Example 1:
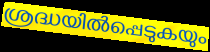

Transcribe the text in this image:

ശ്രദ്ധയിൽപ്പെടുകയും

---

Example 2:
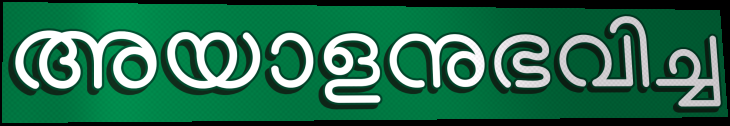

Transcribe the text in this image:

അയാളനുഭവിച്ച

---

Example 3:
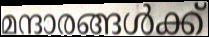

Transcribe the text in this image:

മന്ദാരങ്ങൾക്ക്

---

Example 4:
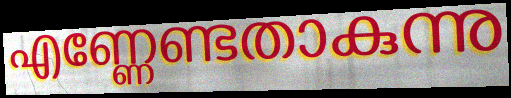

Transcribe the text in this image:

എണ്ണേണ്ടതാകുന്നു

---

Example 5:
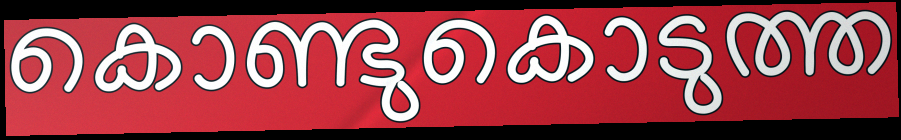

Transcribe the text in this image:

കൊണ്ടുകൊടുത്ത